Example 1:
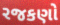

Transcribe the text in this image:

રજકણો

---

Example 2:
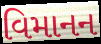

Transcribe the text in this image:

વિમાનન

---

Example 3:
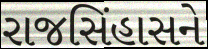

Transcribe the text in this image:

રાજસિંહાસને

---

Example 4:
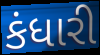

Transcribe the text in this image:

કંધારી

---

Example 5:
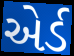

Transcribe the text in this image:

એર્ડ